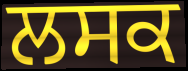
ਲਸਕ